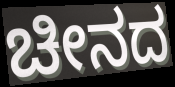
ಚೀನದ